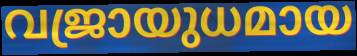
വജ്രായുധമായ